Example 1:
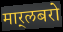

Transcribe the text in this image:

मार्लबरो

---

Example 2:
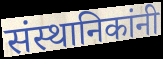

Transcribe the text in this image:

संस्थानिकांनी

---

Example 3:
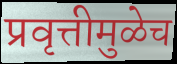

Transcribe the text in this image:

प्रवृत्तीमुळेच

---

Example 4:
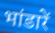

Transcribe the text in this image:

भांडारें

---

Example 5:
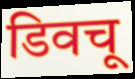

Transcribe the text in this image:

डिवचू